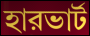
হারভার্ট